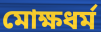
মোক্ষধর্ম